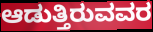
ಆಡುತ್ತಿರುವವರ